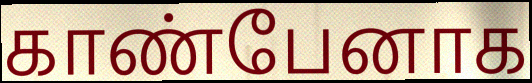
காண்பேனாக